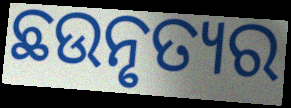
ଛଉନୃତ୍ୟର